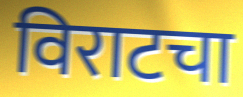
विराटचा